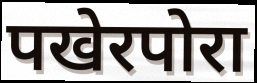
पखेरपोरा